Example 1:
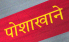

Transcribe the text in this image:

पोशाखाने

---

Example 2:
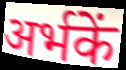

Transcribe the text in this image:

अर्भकें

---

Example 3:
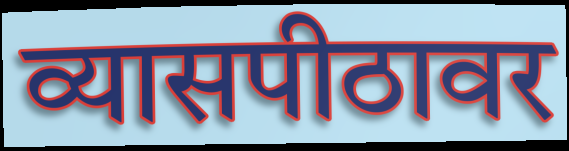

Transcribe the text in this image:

व्यासपीठावर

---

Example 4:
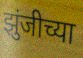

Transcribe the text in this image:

झुंजीच्या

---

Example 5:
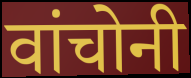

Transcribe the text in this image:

वांचोनी